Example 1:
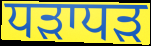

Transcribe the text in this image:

ਧੜਾਧੜ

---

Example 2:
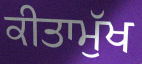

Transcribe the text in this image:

ਕੀਤਾਮੁੱਖ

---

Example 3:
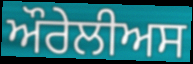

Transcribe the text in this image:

ਔਰੇਲੀਅਸ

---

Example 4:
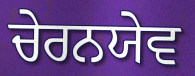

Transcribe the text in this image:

ਚੇਰਨਯੇਵ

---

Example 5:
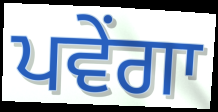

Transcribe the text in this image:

ਪਵੇਂਗਾ